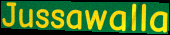
Jussawalla